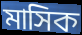
মাসিক